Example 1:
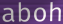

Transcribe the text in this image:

aboh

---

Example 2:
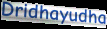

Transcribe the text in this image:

Dridhayudha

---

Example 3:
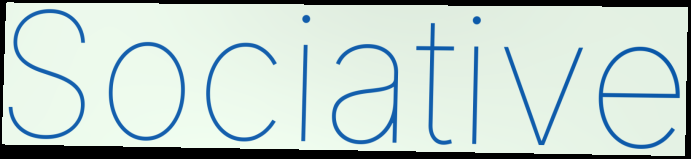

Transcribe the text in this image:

Sociative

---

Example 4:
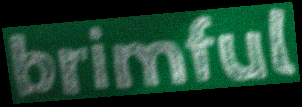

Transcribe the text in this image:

brimful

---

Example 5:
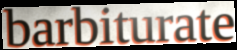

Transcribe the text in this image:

barbiturate